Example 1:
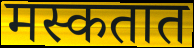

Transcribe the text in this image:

मस्कतात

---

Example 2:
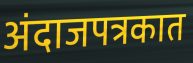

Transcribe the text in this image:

अंदाजपत्रकात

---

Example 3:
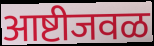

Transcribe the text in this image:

आष्टीजवळ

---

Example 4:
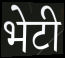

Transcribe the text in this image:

भेटी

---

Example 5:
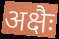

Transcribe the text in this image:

अक्षैः